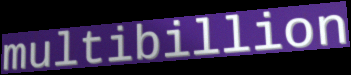
multibillion